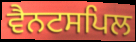
ਵੈਨਟਸਪਿਲ